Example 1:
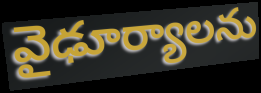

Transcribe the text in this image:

వైఢూర్యాలను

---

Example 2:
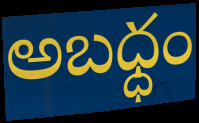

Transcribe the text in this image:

అబధ్ధం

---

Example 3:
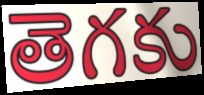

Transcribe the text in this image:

తెగకు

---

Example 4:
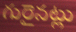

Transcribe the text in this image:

గురైనట్లు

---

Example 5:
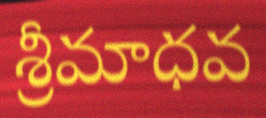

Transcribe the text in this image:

శ్రీమాధవ